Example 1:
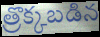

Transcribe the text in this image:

త్రొక్కబడిన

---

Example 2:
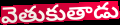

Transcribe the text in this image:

వెతుకుతాడు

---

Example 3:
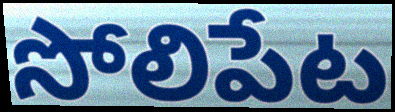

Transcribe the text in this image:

సోలిపేట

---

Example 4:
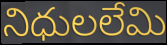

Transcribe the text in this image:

నిధులలేమి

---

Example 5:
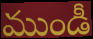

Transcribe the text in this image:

ముండీ